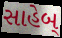
સાહેબ્